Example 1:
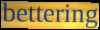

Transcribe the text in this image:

bettering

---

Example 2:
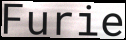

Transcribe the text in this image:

Furie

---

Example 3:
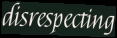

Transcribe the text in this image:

disrespecting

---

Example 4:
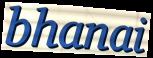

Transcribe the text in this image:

bhanai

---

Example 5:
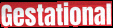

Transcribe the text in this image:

Gestational